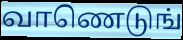
வாணெடுங்